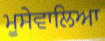
ਮੂਸੇਵਾਲਿਆ